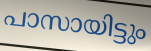
പാസായിട്ടും